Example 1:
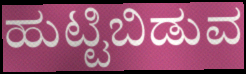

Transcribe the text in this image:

ಹುಟ್ಟಿಬಿಡುವ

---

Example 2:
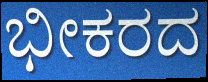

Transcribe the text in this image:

ಭೀಕರದ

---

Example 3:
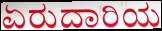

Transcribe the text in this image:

ಏರುದಾರಿಯ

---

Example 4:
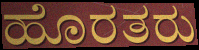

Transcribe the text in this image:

ಹೊರತರು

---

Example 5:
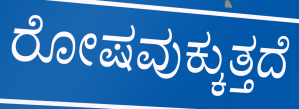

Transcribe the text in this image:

ರೋಷವುಕ್ಕುತ್ತದೆ